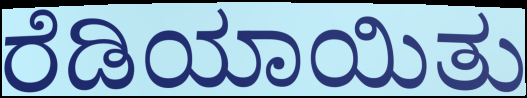
ರೆಡಿಯಾಯಿತು